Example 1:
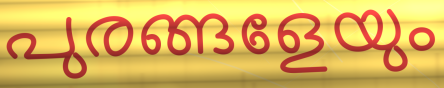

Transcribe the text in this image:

പുരങ്ങളേയും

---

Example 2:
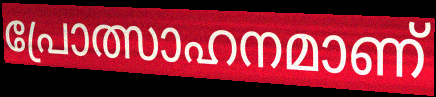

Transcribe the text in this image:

പ്രോത്സാഹനമാണ്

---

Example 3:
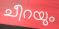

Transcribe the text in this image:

ചീറയും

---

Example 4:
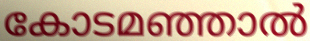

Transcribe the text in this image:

കോടമഞ്ഞാൽ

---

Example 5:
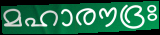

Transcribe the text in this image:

മഹാരൗദ്രഃ